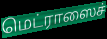
மெட்ராஸைச்